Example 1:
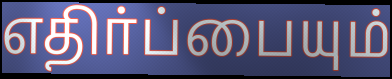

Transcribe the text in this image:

எதிர்ப்பையும்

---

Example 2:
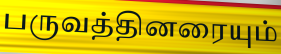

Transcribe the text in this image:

பருவத்தினரையும்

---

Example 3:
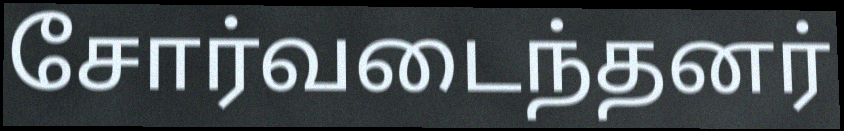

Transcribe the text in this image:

சோர்வடைந்தனர்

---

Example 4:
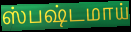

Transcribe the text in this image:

ஸ்பஷ்டமாய்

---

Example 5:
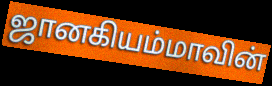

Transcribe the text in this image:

ஜானகியம்மாவின்